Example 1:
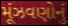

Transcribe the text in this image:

મૂંઝવણોનું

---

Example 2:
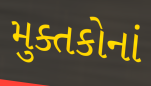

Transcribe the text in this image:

મુક્તકોનાં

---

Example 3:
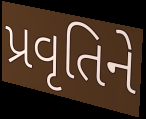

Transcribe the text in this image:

પ્રવૃતિને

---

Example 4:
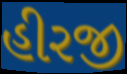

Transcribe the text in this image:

હીરજી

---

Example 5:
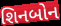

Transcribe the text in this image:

શિનબોન